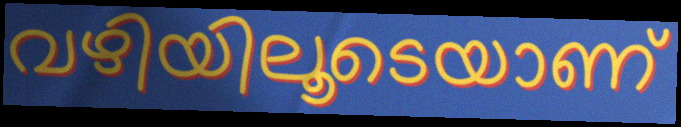
വഴിയിലൂടെയാണ്